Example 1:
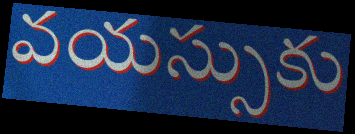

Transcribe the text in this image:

వయస్సుకు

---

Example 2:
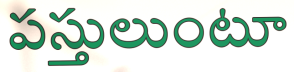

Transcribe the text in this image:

పస్తులుంటూ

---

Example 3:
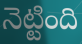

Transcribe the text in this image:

నెట్టింది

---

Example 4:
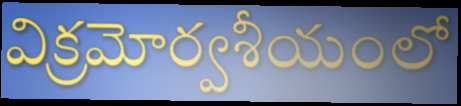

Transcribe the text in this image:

విక్రమోర్వశీయంలో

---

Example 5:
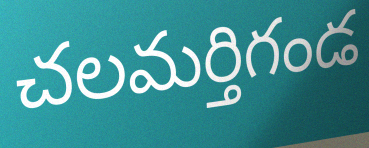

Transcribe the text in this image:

చలమర్తిగండ